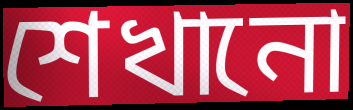
শেখানো